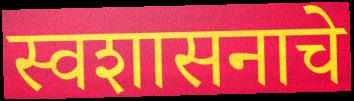
स्वशासनाचे